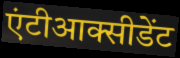
एंटीआक्सीडेंट